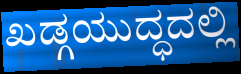
ಖಡ್ಗಯುದ್ಧದಲ್ಲಿ